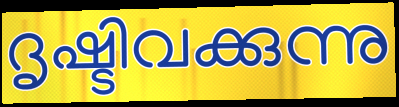
ദൃഷ്ടിവക്കുന്നു